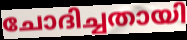
ചോദിച്ചതായി